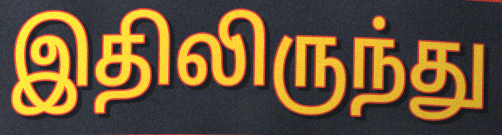
இதிலிருந்து